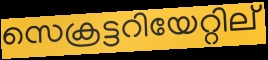
സെക്രട്ടറിയേറ്റില്